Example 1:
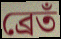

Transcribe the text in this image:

ব্রেতঁ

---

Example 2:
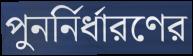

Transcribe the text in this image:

পুনর্নির্ধারণের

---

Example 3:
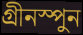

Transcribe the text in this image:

গ্রীনস্পুন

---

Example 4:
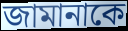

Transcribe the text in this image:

জামানাকে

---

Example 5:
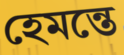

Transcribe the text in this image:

হেমন্তে